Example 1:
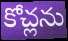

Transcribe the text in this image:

కోచ్లను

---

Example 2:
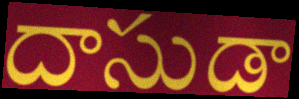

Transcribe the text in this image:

దాసుడా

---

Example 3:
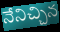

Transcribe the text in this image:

నేనిచ్చిన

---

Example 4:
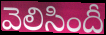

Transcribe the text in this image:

వెలిసిందీ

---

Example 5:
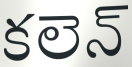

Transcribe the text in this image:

కలెన్